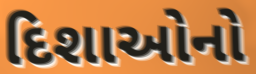
દિશાઓનો